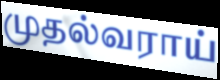
முதல்வராய்